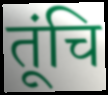
तूंचि